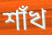
শাঁখ